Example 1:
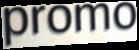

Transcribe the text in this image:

promo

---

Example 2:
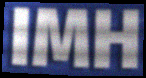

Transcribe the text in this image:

IMH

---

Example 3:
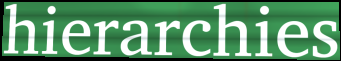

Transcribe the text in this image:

hierarchies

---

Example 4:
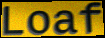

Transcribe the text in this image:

Loaf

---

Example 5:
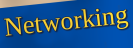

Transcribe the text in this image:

Networking